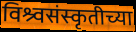
विश्र्वसंस्कृतीच्या